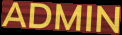
ADMIN